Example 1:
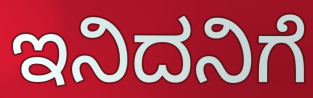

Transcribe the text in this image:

ಇನಿದನಿಗೆ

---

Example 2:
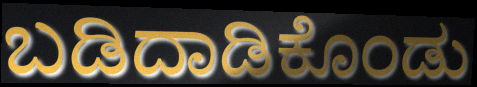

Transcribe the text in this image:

ಬಡಿದಾಡಿಕೊಂಡು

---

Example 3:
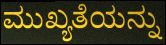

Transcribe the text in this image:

ಮುಖ್ಯತೆಯನ್ನು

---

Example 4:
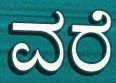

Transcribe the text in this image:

ವರೆ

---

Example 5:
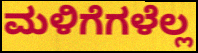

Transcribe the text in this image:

ಮಳಿಗೆಗಳೆಲ್ಲ